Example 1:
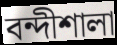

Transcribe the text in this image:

বন্দীশালা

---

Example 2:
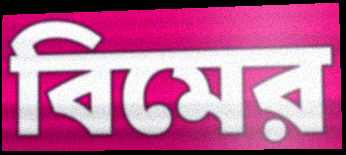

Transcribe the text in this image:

বিমের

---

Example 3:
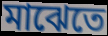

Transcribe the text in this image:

মাঝেতে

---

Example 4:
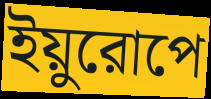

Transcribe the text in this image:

ইয়ুরোপে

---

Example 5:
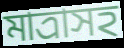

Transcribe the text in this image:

মাত্রাসহ